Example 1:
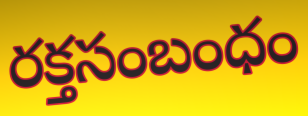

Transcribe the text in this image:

రక్తసంబంధం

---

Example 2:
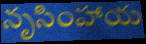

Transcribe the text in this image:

నృసింహాయ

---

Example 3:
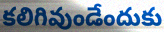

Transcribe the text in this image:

కలిగివుండేందుకు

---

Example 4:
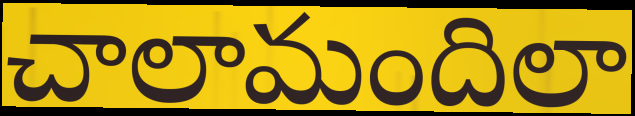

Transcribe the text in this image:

చాలామందిలా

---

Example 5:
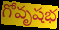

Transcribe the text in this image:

గోవృషభ